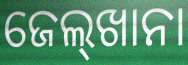
ଜେଲ୍‌ଖାନା